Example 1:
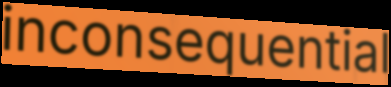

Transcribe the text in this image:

inconsequential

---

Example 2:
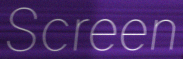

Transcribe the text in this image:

Screen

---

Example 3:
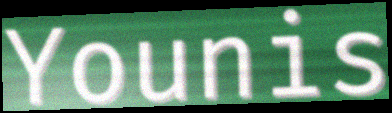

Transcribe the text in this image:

Younis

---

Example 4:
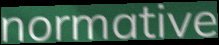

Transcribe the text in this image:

normative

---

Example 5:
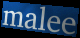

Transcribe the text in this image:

malee